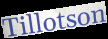
Tillotson